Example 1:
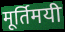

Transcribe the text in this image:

मूर्तिमयी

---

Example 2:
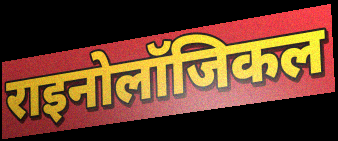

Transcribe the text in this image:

राइनोलॉजिकल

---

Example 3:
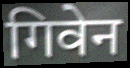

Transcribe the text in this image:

गिवेन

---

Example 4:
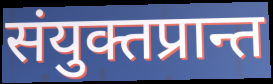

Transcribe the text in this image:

संयुक्तप्रान्त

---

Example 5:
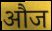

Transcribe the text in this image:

औज